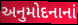
અનુમોદનાનાં